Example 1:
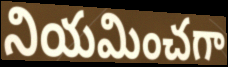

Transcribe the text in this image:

నియమించగా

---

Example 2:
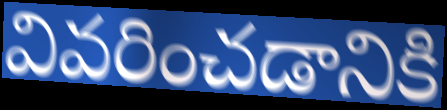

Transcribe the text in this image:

వివరించడానికి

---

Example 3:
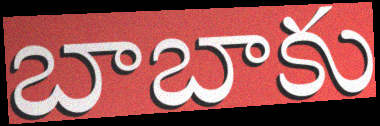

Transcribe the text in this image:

బాబాకు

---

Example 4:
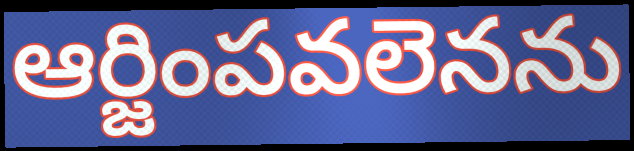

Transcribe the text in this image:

ఆర్జింపవలెనను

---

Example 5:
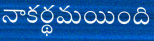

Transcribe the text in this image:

నాకర్థమయింది